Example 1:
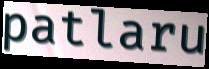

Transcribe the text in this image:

patlaru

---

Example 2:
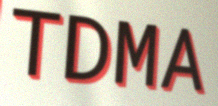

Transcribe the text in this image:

TDMA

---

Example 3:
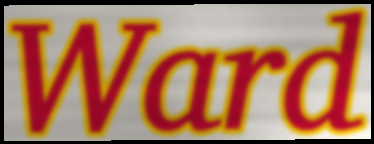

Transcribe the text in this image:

Ward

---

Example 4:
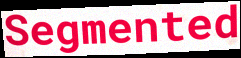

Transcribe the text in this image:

Segmented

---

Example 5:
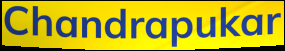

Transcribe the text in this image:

Chandrapukar